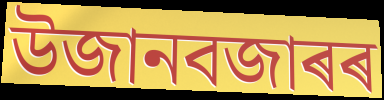
উজানবজাৰৰ